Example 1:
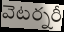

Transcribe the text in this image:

వెటర్నరీ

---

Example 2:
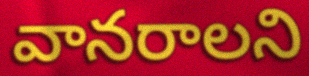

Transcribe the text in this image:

వానరాలని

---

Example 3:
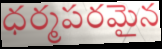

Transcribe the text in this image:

ధర్మపరమైన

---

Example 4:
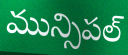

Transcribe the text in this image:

మున్సిపల్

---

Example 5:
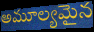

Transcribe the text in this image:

అమూల్యమైన